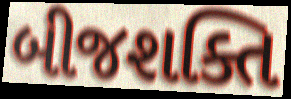
બીજશક્તિ